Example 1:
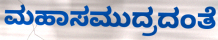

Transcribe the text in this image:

ಮಹಾಸಮುದ್ರದಂತೆ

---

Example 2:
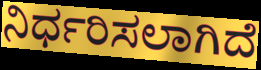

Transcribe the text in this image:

ನಿರ್ಧರಿಸಲಾಗಿದೆ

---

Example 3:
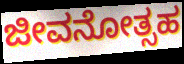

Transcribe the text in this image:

ಜೀವನೋತ್ಸಹ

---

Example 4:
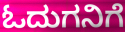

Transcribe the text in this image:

ಓದುಗನಿಗೆ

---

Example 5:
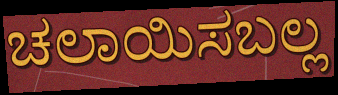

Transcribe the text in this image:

ಚಲಾಯಿಸಬಲ್ಲ